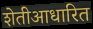
शेतीआधारित